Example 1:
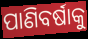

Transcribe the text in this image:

ପାଣିବର୍ଷାକୁ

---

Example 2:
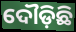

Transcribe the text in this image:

ଦୌଡ଼ିଛି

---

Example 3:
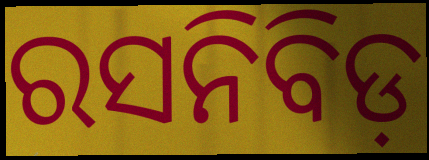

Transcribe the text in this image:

ରସନିବିଡ଼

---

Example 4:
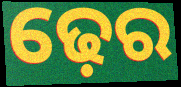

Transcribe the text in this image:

ଢ଼େର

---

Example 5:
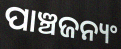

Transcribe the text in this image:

ପାଞ୍ଚଜନ୍ୟଂ